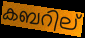
കബറില്